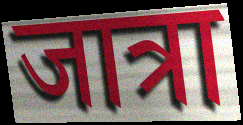
जात्रा